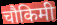
चौकिमी